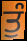
ਤੁੰ